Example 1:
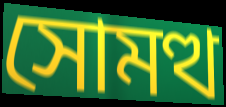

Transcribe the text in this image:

সোমত্থ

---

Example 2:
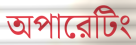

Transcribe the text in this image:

অপারেটিং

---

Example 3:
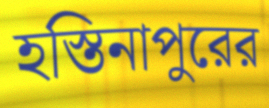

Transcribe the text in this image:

হস্তিনাপুরের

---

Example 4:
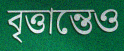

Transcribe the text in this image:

বৃত্তান্তেও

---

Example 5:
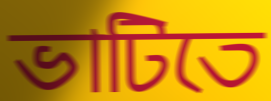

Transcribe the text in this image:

ভাটিতে